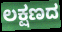
ಲಕ್ಷಣದ